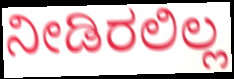
ನೀಡಿರಲಿಲ್ಲ